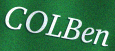
COLBen